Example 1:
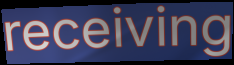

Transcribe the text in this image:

receiving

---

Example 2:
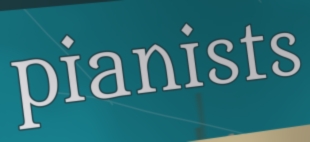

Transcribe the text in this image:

pianists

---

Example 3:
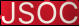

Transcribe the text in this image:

JSOC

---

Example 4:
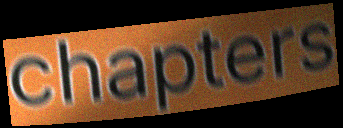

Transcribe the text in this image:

chapters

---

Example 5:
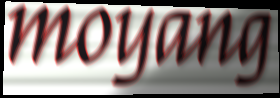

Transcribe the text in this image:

moyang